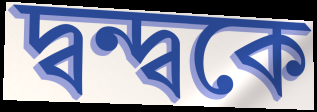
দ্বন্দ্বকে